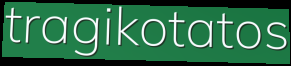
tragikotatos